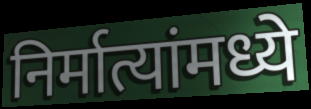
निर्मात्यांमध्ये